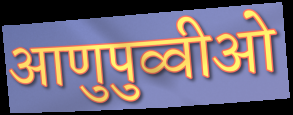
आणुपुव्वीओ